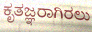
ಕೃತಜ್ಞರಾಗಿರಲು